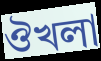
ঔখলা